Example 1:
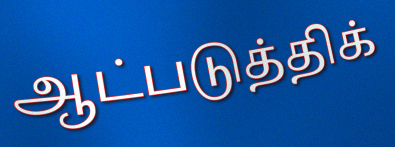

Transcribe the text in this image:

ஆட்படுத்திக்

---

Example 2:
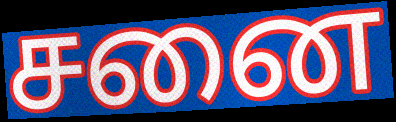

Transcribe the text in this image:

சனை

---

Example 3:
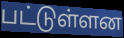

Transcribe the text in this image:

பட்டுள்ளன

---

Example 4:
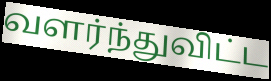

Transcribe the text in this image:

வளர்ந்துவிட்ட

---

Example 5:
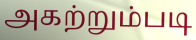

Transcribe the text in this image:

அகற்றும்படி